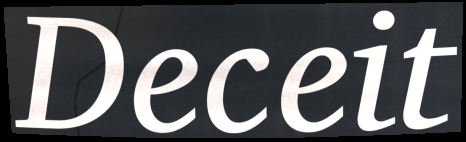
Deceit